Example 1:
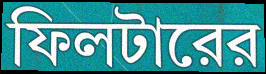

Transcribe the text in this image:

ফিলটারের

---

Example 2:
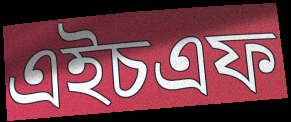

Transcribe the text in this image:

এইচএফ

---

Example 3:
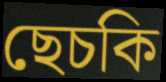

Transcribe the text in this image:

ছেচকি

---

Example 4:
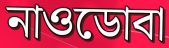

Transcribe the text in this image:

নাওডোবা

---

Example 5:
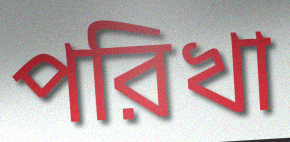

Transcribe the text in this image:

পরিখা